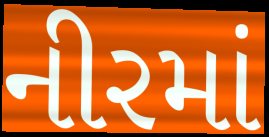
નીરમાં